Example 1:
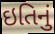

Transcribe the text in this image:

ઇતિનું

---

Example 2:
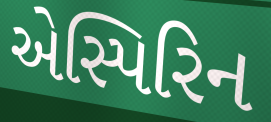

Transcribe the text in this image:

એસ્પિરિન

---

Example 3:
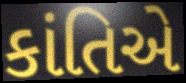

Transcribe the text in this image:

કાંતિએ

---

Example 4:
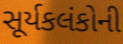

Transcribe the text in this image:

સૂર્યકલંકોની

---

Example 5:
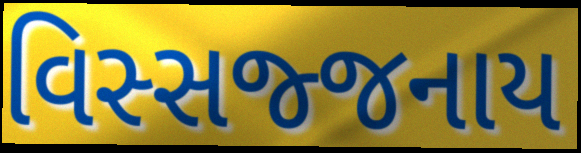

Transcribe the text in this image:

વિસ્સજ્જનાય